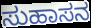
ಸುಹಾಸನ